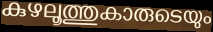
കുഴലൂത്തുകാരുടെയും